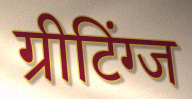
ग्रीटिंग्ज